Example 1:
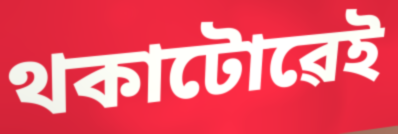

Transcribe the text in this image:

থকাটোৱেই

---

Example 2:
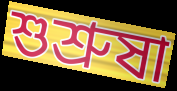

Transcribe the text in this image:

শুশ্ৰুষা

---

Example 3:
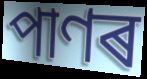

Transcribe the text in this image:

পাণৰ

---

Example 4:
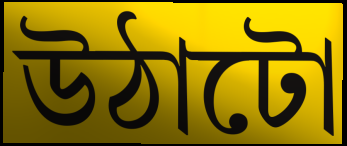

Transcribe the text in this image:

উঠাটো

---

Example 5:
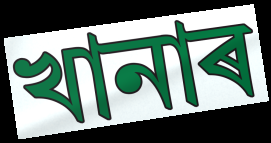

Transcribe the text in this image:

খানাৰ